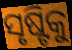
ସୃଷ୍ଟିକୁ